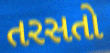
તરસતો